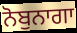
ਨੋਬੁਨਾਗਾ